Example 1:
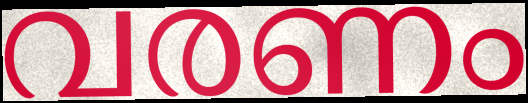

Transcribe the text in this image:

വരണം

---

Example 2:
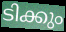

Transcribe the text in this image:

ടിക്കും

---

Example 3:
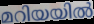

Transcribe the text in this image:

മറിയയിൽ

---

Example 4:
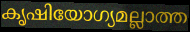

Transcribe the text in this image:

കൃഷിയോഗ്യമല്ലാത്ത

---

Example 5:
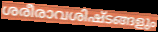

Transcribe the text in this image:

ശരീരാവശിഷ്ടങ്ങളും